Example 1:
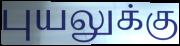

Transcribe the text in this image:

புயலுக்கு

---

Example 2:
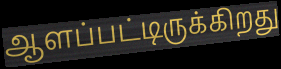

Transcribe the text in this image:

ஆளப்பட்டிருக்கிறது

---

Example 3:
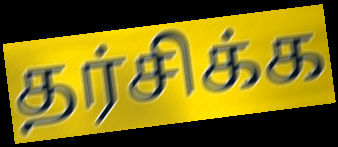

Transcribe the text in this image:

தர்சிக்க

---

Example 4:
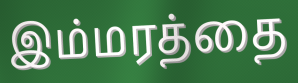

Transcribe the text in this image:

இம்மரத்தை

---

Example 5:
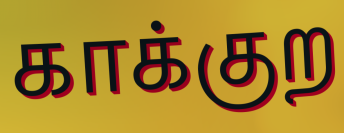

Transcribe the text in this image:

காக்குற